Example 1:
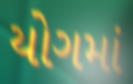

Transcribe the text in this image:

યોગમાં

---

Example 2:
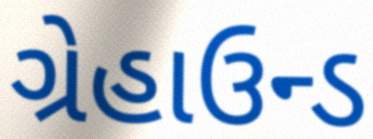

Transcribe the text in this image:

ગ્રેહાઉન્ડ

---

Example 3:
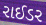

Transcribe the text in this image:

રાઈડર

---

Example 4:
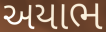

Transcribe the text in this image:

અયાભ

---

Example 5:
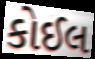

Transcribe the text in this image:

કોઈલ